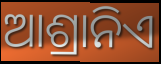
ଆଶ୍ରାନିଏ